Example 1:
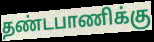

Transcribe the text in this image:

தண்டபாணிக்கு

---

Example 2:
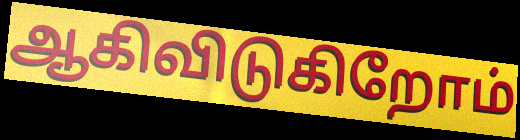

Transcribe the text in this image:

ஆகிவிடுகிறோம்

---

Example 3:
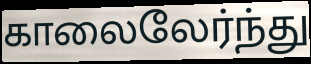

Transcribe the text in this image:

காலைலேர்ந்து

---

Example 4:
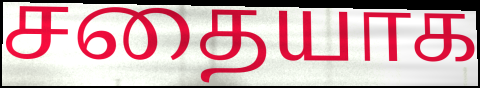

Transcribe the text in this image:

சதையாக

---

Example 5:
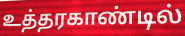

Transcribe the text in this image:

உத்தரகாண்டில்